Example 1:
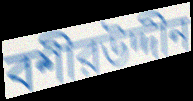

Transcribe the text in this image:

বশীরউদ্দীন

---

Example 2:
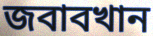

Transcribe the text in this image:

জবাবখান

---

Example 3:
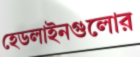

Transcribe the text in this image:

হেডলাইনগুলোর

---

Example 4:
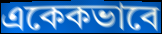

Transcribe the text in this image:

একেকভাবে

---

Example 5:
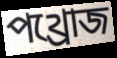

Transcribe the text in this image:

পথ্রোজ